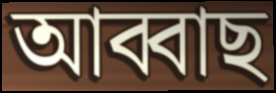
আব্বাছ